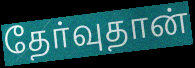
தேர்வுதான்